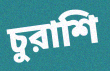
চুরাশি